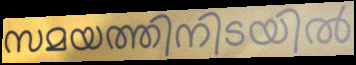
സമയത്തിനിടയിൽ